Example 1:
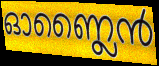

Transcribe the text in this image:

ഓണ്ലൈൻ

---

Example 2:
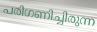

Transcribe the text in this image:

പരിഗണിച്ചിരുന്ന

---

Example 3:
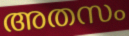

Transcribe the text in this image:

അതസം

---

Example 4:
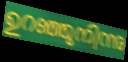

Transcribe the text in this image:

ഉറഞ്ഞുനിന്നു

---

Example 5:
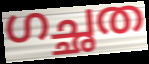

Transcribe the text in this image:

ഗച്ഛത